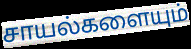
சாயல்களையும்